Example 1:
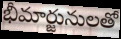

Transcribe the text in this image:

భీమార్జునులతో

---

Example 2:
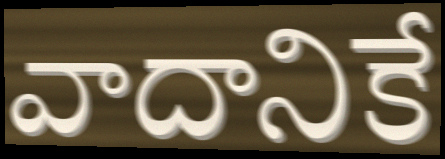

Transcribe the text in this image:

వాదానికే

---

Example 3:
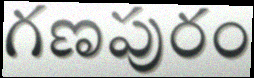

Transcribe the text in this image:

గణపురం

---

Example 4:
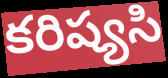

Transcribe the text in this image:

కరిష్యసి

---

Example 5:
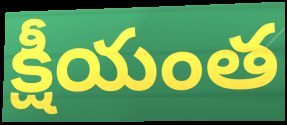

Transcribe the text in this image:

క్షీయంత